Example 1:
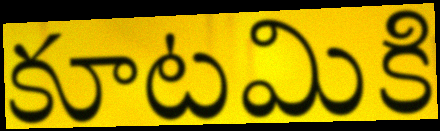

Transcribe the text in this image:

కూటమికి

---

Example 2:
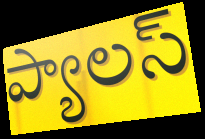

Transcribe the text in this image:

ప్యాలస్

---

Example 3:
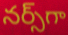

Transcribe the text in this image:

నర్స్‌గా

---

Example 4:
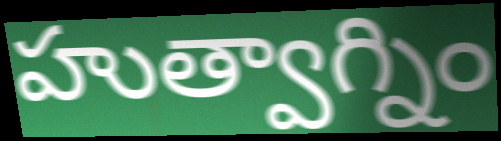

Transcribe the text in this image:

హుత్వాగ్నిం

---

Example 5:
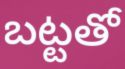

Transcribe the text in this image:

బట్టతో